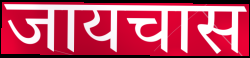
जायचास